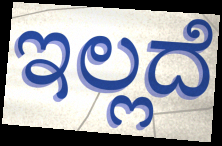
ಇಲ್ಲದೆ